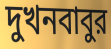
দুখনবাবুর